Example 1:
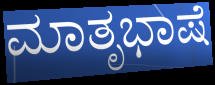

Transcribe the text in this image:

ಮಾತೃಭಾಷೆ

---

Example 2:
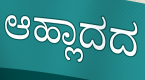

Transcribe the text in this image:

ಆಹ್ಲಾದದ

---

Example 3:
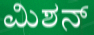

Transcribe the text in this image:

ಮಿಶನ್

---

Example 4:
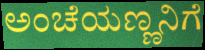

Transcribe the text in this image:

ಅಂಚೆಯಣ್ಣನಿಗೆ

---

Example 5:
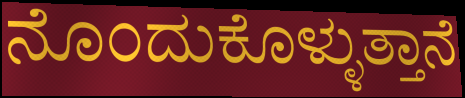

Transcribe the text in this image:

ನೊಂದುಕೊಳ್ಳುತ್ತಾನೆ